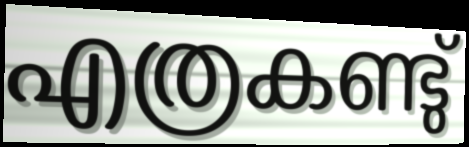
എത്രകണ്ടു്